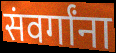
संवर्गांना